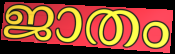
ജാതം